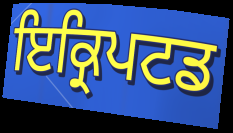
ਇਕ੍ਰਿਪਟਡ